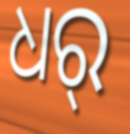
ଧର୍